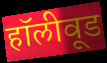
हॉलीवूड